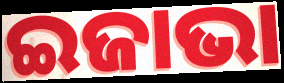
ଇଜାଭା